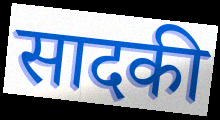
सादकी